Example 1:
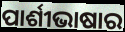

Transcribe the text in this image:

ପାର୍ଶୀଭାଷାର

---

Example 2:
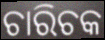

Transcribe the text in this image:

ଚାରିଚକ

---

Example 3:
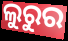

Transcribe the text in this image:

ଲୁରୁର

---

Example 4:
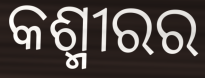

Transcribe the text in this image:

କଶ୍ମୀରର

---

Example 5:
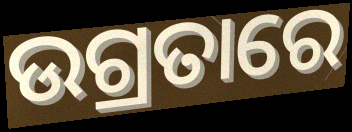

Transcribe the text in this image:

ଉଗ୍ରତାରେ